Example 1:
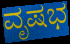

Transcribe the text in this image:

ವೃಷಭ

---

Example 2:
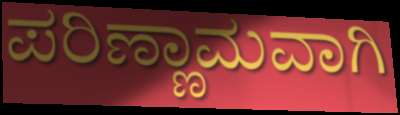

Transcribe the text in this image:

ಪರಿಣ್ಣಾಮವಾಗಿ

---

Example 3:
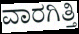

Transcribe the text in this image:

ವಾರಗಿತ್ತಿ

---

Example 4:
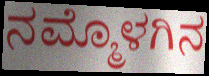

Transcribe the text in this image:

ನಮ್ಮೊಳಗಿನ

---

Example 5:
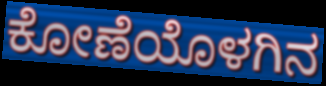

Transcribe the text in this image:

ಕೋಣೆಯೊಳಗಿನ